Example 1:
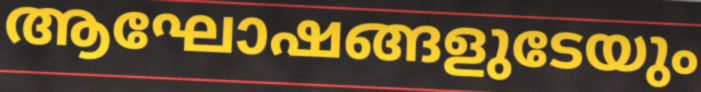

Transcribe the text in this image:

ആഘോഷങ്ങളുടേയും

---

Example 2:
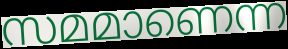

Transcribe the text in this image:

സമമാണെന്ന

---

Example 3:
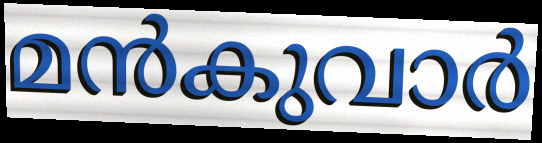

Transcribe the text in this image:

മൻകുവാർ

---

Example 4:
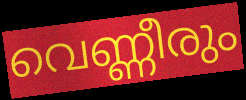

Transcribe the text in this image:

വെണ്ണീരും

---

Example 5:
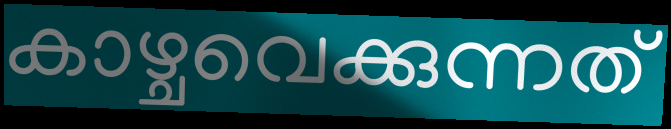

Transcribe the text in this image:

കാഴ്ചവെക്കുന്നത്